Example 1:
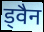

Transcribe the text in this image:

ड्वैन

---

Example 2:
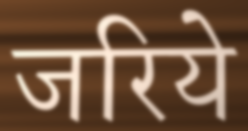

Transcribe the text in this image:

जरिये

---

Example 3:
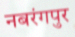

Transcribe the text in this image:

नबरंगपुर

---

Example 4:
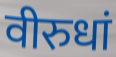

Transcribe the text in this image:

वीरुधां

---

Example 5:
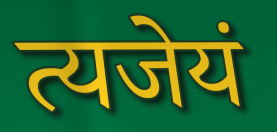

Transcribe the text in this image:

त्यजेयं